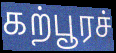
கற்பூரச்